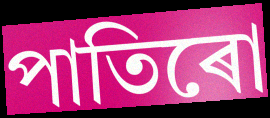
পাতিৰো